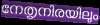
നേതൃനിരയിലും